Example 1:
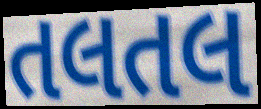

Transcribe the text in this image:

તલતલ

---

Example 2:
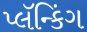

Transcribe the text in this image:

પ્લૅન્કિંગ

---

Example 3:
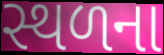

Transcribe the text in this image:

સ્થળના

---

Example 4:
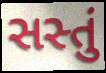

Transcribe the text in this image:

સસ્તું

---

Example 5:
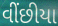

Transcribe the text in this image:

વીંછીયા